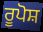
ਰੂਪੋਸ਼